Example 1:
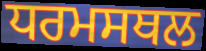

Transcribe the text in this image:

ਧਰਮਸਥਲ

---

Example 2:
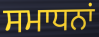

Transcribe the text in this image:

ਸਮਾਧਨਾਂ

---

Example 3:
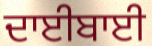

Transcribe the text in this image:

ਦਾਈਬਾਈ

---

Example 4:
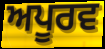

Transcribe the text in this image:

ਅਪੂਰਵ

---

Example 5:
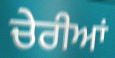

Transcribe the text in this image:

ਚੇਰੀਆਂ